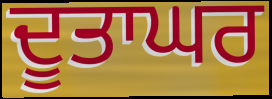
ਦੂਤਾਘਰ